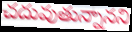
చదువుతున్నానని